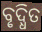
ବୃଦ୍ଧିତ